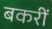
बकरीं